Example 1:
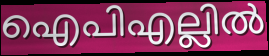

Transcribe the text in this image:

ഐപിഎല്ലിൽ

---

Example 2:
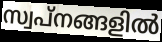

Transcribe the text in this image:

സ്വപ്നങ്ങളിൽ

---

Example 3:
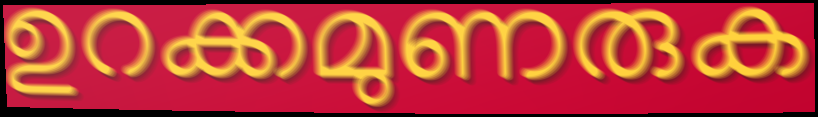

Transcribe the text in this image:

ഉറക്കമുണരുക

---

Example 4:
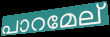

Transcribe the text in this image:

പാറമേല്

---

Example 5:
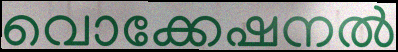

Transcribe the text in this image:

വൊക്കേഷനൽ